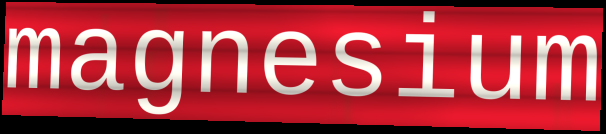
magnesium